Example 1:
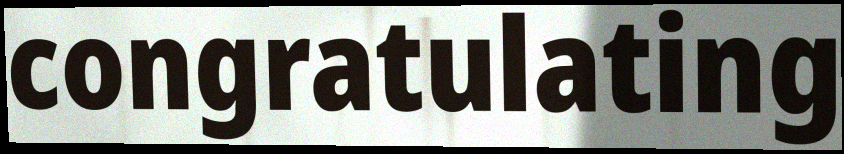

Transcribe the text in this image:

congratulating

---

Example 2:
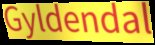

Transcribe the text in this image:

Gyldendal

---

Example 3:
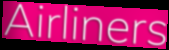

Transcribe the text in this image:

Airliners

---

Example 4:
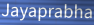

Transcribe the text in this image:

Jayaprabha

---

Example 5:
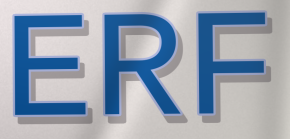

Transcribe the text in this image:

ERF